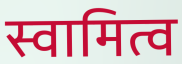
स्वामित्व